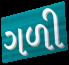
ગળી